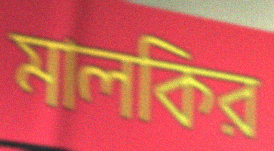
মালকির